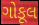
ગોકૂલ